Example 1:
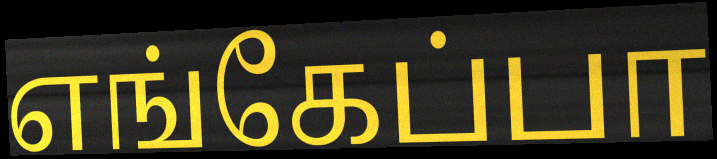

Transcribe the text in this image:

எங்கேப்பா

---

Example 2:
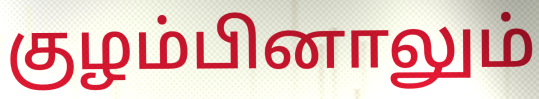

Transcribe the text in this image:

குழம்பினாலும்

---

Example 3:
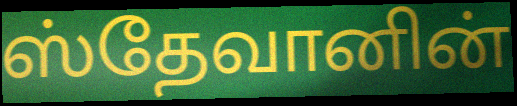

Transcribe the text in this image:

ஸ்தேவானின்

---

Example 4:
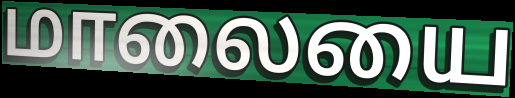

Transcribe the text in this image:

மாலையை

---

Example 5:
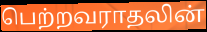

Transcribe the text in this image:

பெற்றவராதலின்